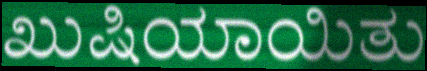
ಖುಷಿಯಾಯಿತು